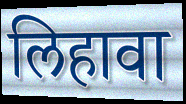
लिहावा